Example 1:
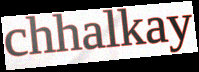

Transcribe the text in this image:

chhalkay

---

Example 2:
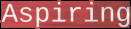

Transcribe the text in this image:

Aspiring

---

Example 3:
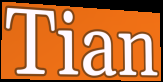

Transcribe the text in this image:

Tian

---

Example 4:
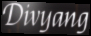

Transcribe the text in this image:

Divyang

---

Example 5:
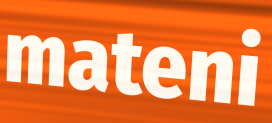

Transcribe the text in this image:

mateni